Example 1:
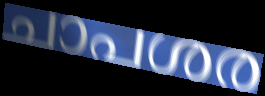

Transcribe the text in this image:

ചാപശര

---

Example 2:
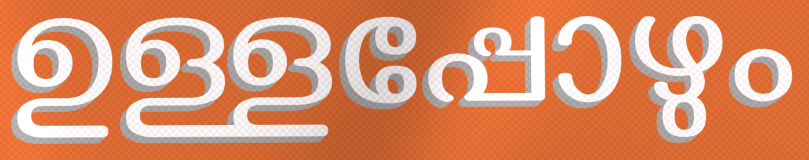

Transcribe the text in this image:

ഉള്ളപ്പോഴും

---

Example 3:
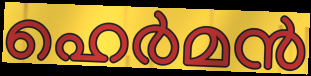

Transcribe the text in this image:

ഹെർമൻ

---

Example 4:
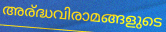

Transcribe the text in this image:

അര്ദ്ധവിരാമങ്ങളുടെ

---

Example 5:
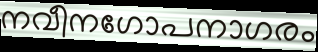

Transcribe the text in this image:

നവീനഗോപനാഗരം